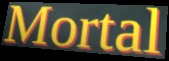
Mortal